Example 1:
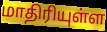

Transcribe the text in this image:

மாதிரியுள்ள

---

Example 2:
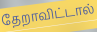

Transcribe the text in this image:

தேறாவிட்டால்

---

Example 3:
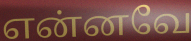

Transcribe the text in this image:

என்னவே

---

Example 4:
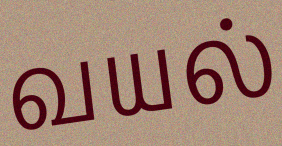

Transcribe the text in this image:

வயல்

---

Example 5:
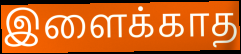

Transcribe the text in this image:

இளைக்காத